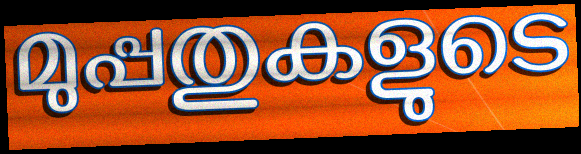
മുപ്പതുകളുടെ